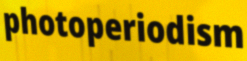
photoperiodism